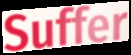
Suffer